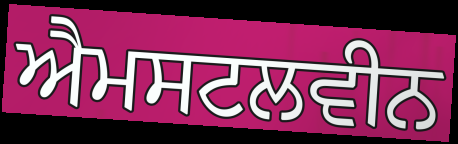
ਐਮਸਟਲਵੀਨ